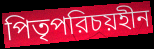
পিতৃপরিচয়হীন